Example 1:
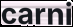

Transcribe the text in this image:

carni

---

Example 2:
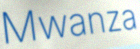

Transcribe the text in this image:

Mwanza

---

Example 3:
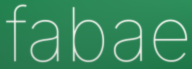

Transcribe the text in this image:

fabae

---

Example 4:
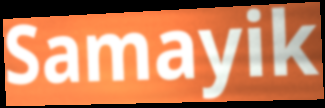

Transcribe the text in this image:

Samayik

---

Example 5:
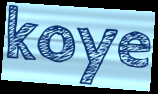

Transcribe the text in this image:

koye